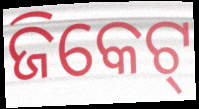
ଜିକେଟ୍